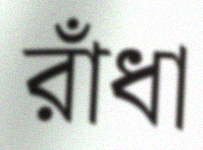
রাঁধা